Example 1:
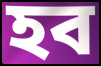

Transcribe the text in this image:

হব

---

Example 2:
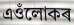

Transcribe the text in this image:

এওঁলোকৰ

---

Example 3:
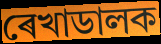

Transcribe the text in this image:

ৰেখাডালক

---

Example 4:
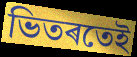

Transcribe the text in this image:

ভিতৰতেই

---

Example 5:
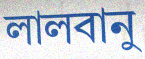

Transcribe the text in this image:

লালবানু